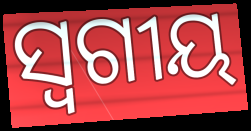
ସ୍ୱଗୀୟ